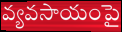
వ్యవసాయంపై